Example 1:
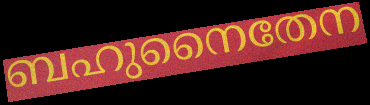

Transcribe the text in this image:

ബഹുനൈതേന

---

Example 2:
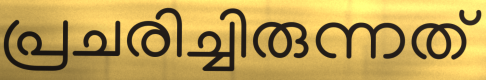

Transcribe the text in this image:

പ്രചരിച്ചിരുന്നത്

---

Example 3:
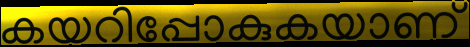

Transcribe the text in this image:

കയറിപ്പോകുകയാണ്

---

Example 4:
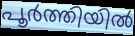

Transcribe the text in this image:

പൂർത്തിയിൽ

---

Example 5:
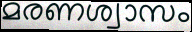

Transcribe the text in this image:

മരണശ്വാസം